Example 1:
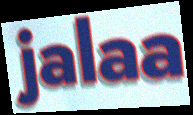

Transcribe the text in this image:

jalaa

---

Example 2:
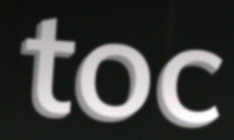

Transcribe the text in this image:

toc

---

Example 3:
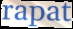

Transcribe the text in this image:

rapat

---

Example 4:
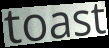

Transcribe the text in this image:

toast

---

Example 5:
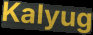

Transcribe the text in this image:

Kalyug